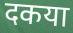
दकया